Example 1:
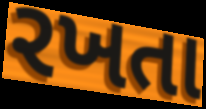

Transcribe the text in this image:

રખતા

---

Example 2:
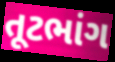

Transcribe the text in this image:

તૂટભાંગ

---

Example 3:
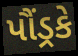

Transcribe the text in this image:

પૌંડ્રકે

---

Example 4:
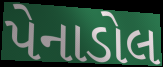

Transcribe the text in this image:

પેનાડોલ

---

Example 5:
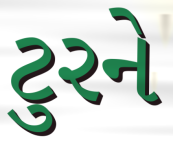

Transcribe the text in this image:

ટુરને